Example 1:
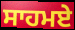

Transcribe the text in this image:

ਸਾਹਮਏ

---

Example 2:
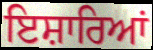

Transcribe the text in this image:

ਇਸ਼ਾਰਿਆਂ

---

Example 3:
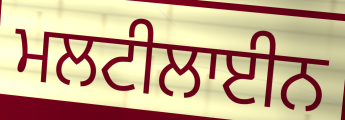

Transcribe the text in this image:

ਮਲਟੀਲਾਈਨ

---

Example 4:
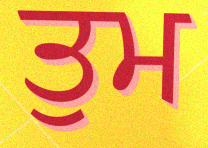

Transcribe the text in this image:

ਤੁਮ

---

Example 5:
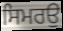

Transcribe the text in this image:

ਸਿਮਰਉ